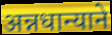
अन्नधान्याने